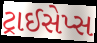
ટ્રાઈસેપ્સ